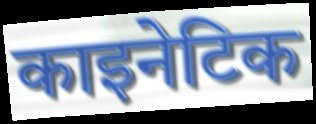
काइनेटिक